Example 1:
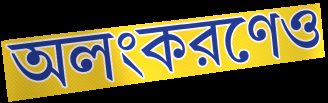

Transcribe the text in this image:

অলংকরণেও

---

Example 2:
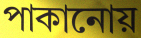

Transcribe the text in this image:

পাকানোয়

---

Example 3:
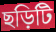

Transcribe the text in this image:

ছড়িটি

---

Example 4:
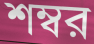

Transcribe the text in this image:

শম্বর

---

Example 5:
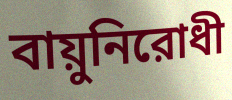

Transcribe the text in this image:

বায়ুনিরোধী